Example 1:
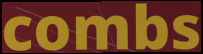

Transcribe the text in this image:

combs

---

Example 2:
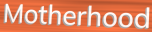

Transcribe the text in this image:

Motherhood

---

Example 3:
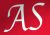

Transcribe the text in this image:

AS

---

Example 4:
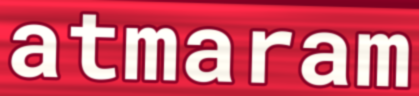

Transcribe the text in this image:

atmaram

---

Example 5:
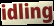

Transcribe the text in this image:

idling